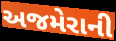
અજમેરાની